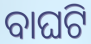
ବାଘଟି